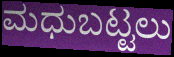
ಮಧುಬಟ್ಟಲು